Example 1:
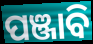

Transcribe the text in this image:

ପଞ୍ଜାବି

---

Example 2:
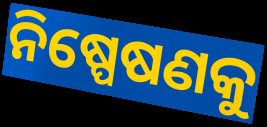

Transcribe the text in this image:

ନିଷ୍ପେଷଣକୁ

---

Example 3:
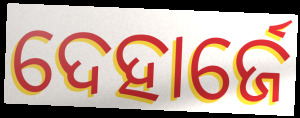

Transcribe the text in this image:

ଦେହାର୍ଜେ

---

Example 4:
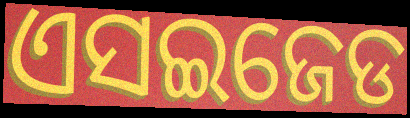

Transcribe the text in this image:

ଏସଇଜେଡ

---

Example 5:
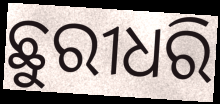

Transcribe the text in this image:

ଛୁରୀଧରି